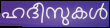
ഹദീസുകൾ